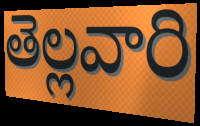
తెల్లవారి